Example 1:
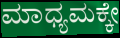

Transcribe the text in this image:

ಮಾಧ್ಯಮಕ್ಕೇ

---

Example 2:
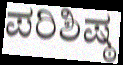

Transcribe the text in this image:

ಪರಿಶಿಷ್ಠ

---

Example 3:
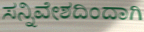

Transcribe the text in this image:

ಸನ್ನಿವೇಶದಿಂದಾಗಿ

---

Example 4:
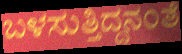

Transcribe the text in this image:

ಬಳಸುತ್ತಿದ್ದನಂತೆ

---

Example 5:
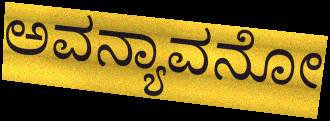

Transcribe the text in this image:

ಅವನ್ಯಾವನೋ